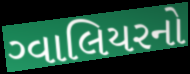
ગ્વાલિયરનો